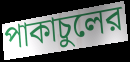
পাকাচুলের